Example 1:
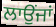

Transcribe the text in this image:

ਲਾਉਂਜਾਂ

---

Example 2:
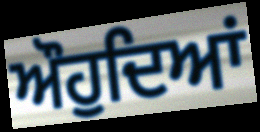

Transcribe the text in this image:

ਔਹੁਦਿਆਂ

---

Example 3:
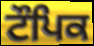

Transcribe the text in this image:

ਟੌਪਿਕ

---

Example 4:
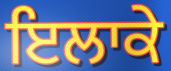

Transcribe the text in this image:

ਇਲਾਕੇ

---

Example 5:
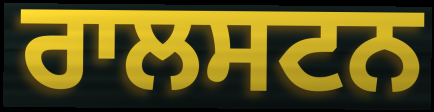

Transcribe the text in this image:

ਰਾਲਸਟਨ